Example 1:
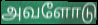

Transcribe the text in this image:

அவளோடு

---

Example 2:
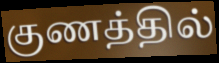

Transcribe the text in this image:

குணத்தில்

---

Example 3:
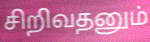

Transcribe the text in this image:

சிறிவதனும்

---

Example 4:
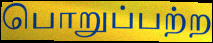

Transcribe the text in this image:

பொறுப்பற்ற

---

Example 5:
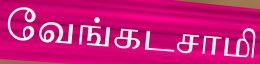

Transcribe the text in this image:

வேங்கடசாமி